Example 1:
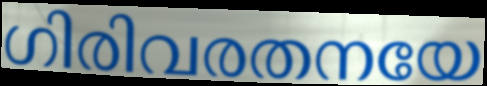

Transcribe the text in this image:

ഗിരിവരതനയേ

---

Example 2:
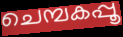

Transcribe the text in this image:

ചെമ്പകപ്പൂ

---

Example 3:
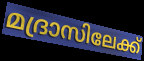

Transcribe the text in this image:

മദ്രാസിലേക്ക്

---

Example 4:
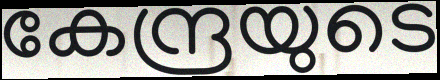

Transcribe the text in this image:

കേന്ദ്രയുടെ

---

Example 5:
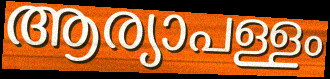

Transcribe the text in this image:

ആര്യാപള്ളം